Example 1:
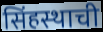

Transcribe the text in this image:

सिंहस्थाची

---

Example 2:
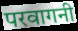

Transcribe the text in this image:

परवागनी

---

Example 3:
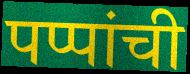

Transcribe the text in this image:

पप्पांची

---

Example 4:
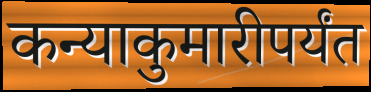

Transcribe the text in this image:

कन्याकुमारीपर्यंत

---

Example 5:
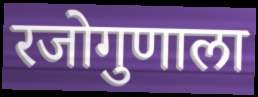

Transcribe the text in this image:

रजोगुणाला